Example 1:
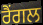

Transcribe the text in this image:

ਰੈਂਗਲ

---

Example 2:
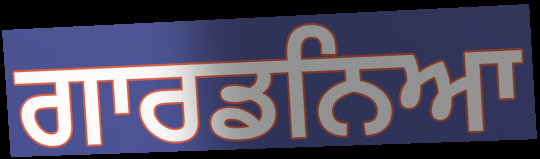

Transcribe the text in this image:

ਗਾਰਡਨਿਆ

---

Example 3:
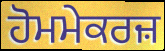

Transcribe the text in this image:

ਹੋਮਮੇਕਰਜ਼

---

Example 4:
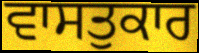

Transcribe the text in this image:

ਵਾਸਤੁਕਾਰ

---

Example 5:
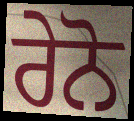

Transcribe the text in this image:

ਰੇਨੋ